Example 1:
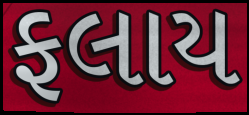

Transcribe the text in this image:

ફલાય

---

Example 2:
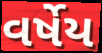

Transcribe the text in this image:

વર્ષેય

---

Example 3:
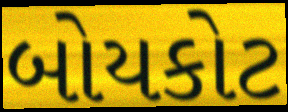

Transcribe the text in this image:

બોયકોટ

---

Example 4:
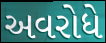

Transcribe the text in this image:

અવરોધે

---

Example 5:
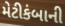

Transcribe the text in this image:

મેટીકંબાની